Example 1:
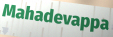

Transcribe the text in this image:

Mahadevappa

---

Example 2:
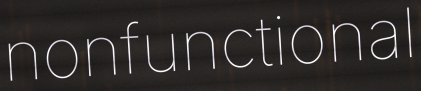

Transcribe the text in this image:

nonfunctional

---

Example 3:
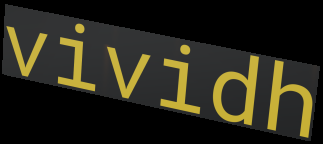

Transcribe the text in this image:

vividh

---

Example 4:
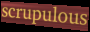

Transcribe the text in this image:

scrupulous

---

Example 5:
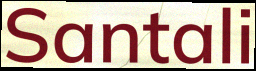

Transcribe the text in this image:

Santali